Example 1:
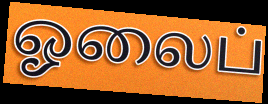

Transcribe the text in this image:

ஓலைப்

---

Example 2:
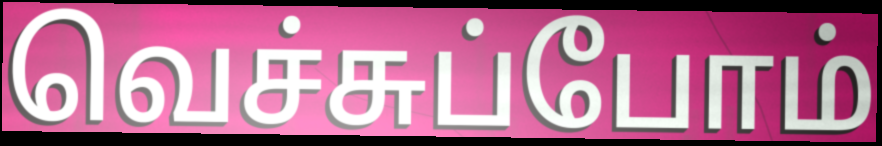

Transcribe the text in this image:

வெச்சுப்போம்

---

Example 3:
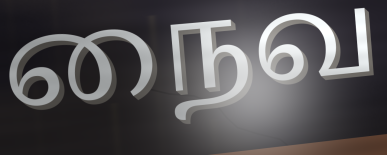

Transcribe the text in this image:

நைவ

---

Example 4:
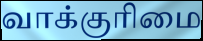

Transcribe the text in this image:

வாக்குரிமை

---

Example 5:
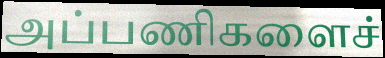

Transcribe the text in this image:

அப்பணிகளைச்